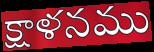
క్షాళనము